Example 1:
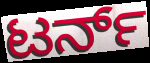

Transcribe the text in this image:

ಟರ್ನ್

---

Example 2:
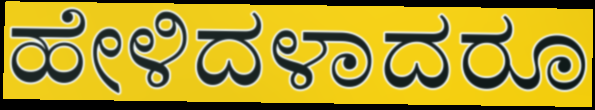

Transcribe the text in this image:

ಹೇಳಿದಳಾದರೂ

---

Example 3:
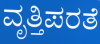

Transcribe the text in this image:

ವೃತ್ತಿಪರತೆ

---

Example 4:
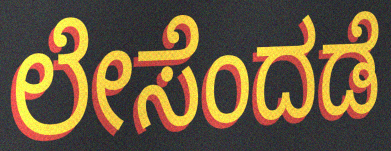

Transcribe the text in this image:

ಲೇಸೆಂದಡೆ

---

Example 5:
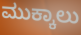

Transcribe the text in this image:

ಮುಕ್ಕಾಲು